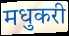
मधुकरी